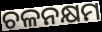
ଚଳନକ୍ଷମ